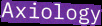
Axiology